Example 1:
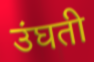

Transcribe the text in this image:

उंघती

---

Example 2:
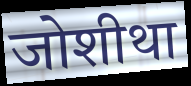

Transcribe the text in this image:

जोशीथा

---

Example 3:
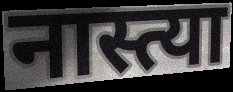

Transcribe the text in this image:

नास्त्या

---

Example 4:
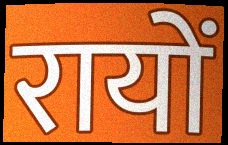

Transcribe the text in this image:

रायों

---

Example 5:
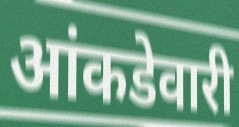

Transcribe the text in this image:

आंकडेवारी